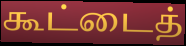
கூட்டைத்